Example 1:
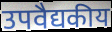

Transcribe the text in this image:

उपवैद्यकीय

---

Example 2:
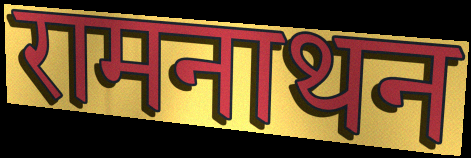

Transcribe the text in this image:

रामनाथन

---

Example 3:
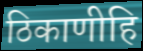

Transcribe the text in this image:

ठिकाणीहि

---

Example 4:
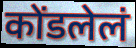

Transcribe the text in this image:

कोंडलेलं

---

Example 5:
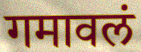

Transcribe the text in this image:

गमावलं